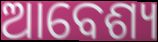
ଆବେଶ୍ୟ